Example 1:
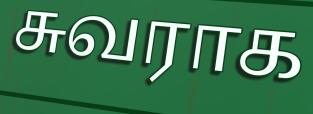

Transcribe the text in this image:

சுவராக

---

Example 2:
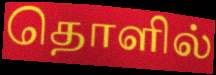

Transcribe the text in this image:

தொளில்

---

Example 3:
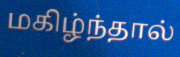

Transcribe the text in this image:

மகிழ்ந்தால்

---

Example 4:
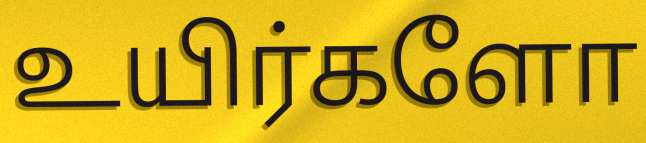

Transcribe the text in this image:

உயிர்களோ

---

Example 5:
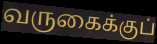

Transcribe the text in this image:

வருகைக்குப்